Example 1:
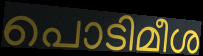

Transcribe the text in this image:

പൊടിമീശ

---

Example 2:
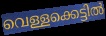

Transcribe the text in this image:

വെള്ളക്കെട്ടിൽ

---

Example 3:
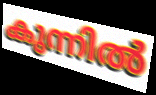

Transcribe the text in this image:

കുന്നിൽ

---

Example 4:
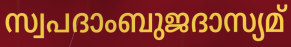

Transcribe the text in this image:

സ്വപദാംബുജദാസ്യമ്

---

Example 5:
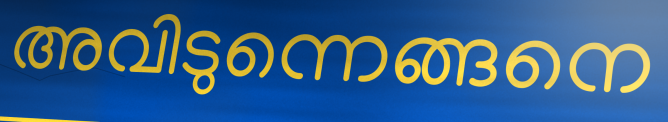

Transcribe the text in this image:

അവിടുന്നെങ്ങനെ